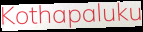
Kothapaluku